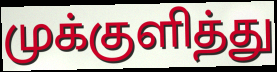
முக்குளித்து